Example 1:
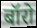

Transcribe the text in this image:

बॉरो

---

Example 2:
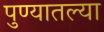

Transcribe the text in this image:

पुण्यातल्या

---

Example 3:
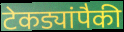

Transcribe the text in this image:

टेकड्यांपैकी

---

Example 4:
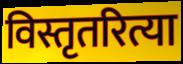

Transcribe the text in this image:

विस्तृतरित्या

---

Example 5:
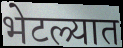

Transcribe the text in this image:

भेटल्यात